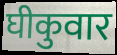
घीकुवार